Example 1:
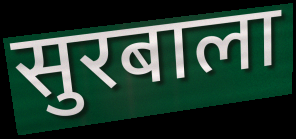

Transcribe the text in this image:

सुरबाला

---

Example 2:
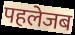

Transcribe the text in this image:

पहलेजब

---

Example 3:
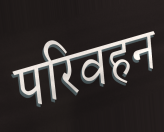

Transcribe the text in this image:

परिवहन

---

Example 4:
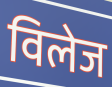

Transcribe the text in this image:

विलेज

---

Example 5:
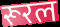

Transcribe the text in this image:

रूरल